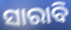
ସାରାବି